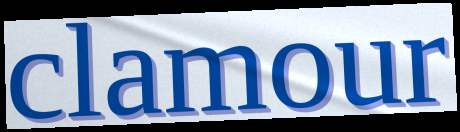
clamour